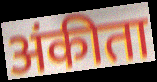
अंकीता